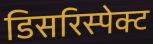
डिसरिस्पेक्ट